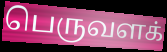
பெருவளக்